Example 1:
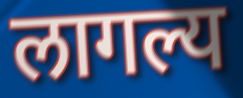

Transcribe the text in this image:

लागल्य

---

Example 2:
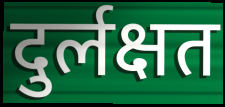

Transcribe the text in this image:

दुर्लक्षत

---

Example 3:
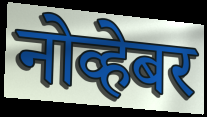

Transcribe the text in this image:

नोव्हेबर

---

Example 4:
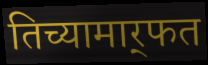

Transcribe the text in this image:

तिच्यामार्फत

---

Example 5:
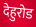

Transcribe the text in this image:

देहुरोड